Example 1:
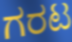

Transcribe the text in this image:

ಗರಟ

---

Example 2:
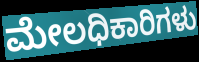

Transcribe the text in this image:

ಮೇಲಧಿಕಾರಿಗಳು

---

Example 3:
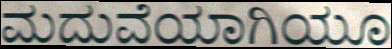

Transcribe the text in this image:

ಮದುವೆಯಾಗಿಯೂ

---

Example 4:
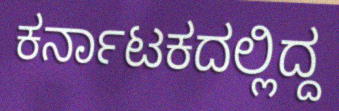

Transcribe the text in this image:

ಕರ್ನಾಟಕದಲ್ಲಿದ್ದ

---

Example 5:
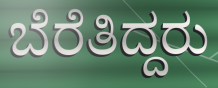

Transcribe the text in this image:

ಬೆರೆತಿದ್ದರು